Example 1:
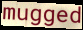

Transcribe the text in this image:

mugged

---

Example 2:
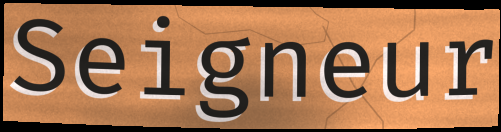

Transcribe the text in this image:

Seigneur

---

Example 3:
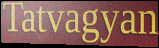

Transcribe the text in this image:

Tatvagyan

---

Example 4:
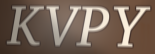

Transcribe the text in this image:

KVPY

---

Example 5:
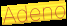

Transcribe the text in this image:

Adeno